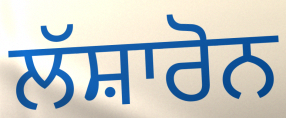
ਲੱਸ਼ਾਰੋਨ